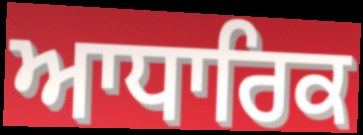
ਆਧਾਰਿਕ